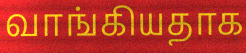
வாங்கியதாக